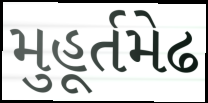
મુહૂર્તમેઢ